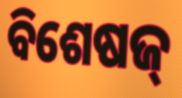
ବିଶେଷଜ୍